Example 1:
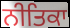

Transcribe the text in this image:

ਨੀਤਿਕਾ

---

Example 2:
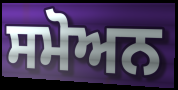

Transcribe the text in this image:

ਸਮੋਅਨ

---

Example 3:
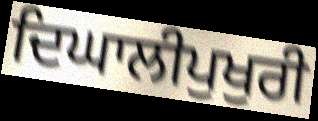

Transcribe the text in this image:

ਦਿਘਾਲੀਪੁਖੁਰੀ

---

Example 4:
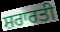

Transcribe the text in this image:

ਸ਼ਰਾਰਤੀ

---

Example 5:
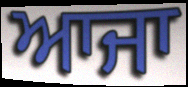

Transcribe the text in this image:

ਆਜਾ